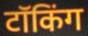
टॉकिंग